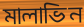
মালাভিন